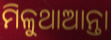
ମିଳୁଥାଆନ୍ତା